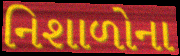
નિશાળોના